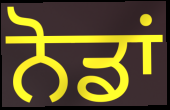
ਨੋਡਾਂ